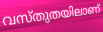
വസ്തുതയിലാണ്